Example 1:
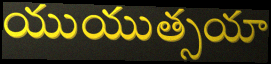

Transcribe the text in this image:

యుయుత్సయా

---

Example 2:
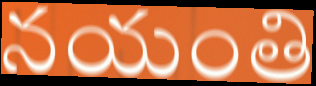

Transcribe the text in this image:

నయంతి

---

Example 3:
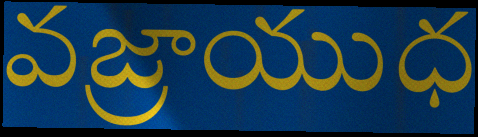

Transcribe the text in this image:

వజ్రాయుధ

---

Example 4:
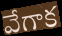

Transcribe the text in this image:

వేగాక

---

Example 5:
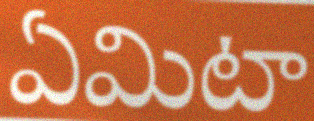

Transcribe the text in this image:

ఏమిటా